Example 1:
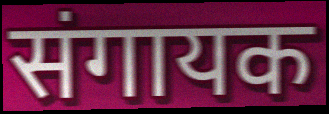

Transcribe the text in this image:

संगायक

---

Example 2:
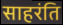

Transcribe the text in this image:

साहरंति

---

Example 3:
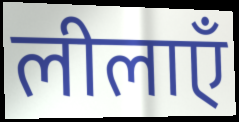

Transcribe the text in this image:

लीलाएँ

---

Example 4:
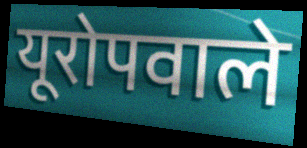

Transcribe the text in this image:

यूरोपवाले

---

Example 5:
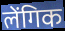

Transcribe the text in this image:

लेंगिक